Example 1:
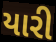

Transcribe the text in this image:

યારી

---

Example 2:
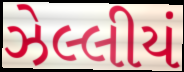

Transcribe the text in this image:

ઝેલ્લીયં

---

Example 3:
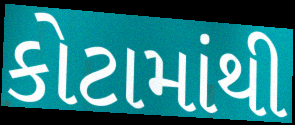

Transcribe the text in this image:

કોટામાંથી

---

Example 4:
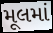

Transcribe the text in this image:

મૂલમાં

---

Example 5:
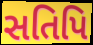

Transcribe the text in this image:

સતિપિ